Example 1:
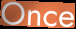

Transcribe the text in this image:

Once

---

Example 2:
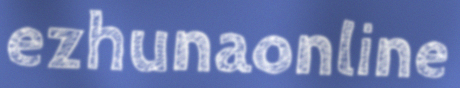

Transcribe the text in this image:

ezhunaonline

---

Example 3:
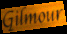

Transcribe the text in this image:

Gilmour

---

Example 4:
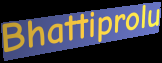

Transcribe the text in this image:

Bhattiprolu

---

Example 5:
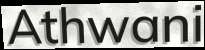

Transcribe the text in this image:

Athwani